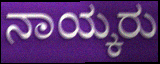
ನಾಯ್ಕರು